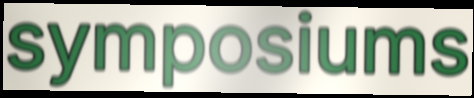
symposiums